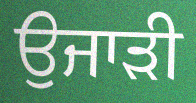
ਉਜਾੜੀ